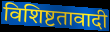
विशिष्टतावादी